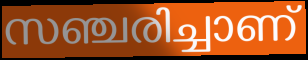
സഞ്ചരിച്ചാണ്